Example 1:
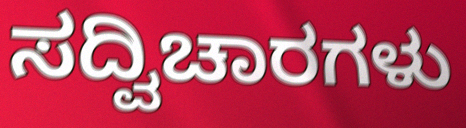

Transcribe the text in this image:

ಸದ್ವಿಚಾರಗಳು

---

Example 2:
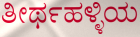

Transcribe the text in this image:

ತೀರ್ಥಹಳ್ಳಿಯ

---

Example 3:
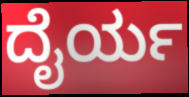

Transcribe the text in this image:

ದೈರ್ಯ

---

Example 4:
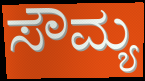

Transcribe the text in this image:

ಸೌಮ್ಯ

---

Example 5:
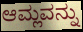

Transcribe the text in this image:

ಆಮ್ಲವನ್ನು